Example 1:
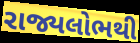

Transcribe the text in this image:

રાજ્યલોભથી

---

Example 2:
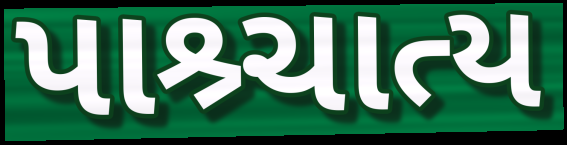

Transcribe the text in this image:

પાશ્ર્ચાત્ય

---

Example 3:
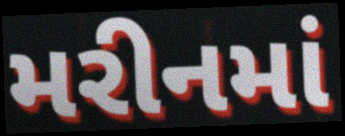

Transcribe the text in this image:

મરીનમાં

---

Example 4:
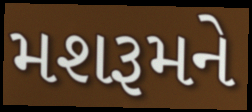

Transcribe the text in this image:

મશરૂમને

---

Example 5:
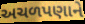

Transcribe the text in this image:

અચળપણાને